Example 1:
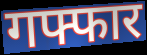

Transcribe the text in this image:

गफ्फार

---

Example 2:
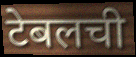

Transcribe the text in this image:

टेबलची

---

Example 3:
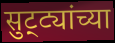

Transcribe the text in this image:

सुट्ट्यांच्या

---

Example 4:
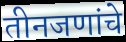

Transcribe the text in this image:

तीनजणांचे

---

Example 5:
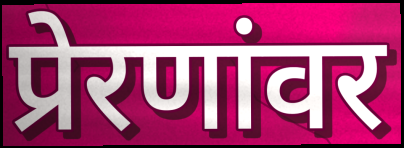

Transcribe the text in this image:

प्रेरणांवर